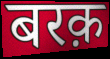
बरक़